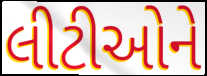
લીટીઓને